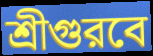
শ্রীগুরবে